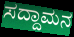
ಸದ್ದಾಮನ